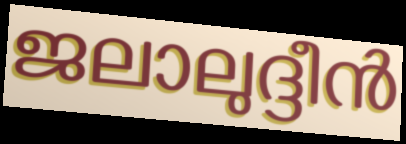
ജലാലുദ്ദീൻ